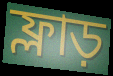
ফ্লাড়